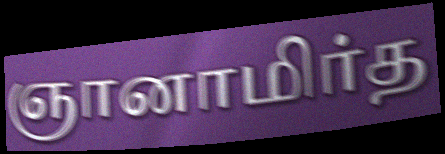
ஞானாமிர்த